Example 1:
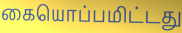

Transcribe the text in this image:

கையொப்பமிட்டது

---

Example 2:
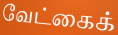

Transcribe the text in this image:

வேட்கைக்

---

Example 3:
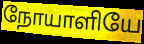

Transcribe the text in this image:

நோயாளியே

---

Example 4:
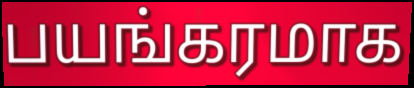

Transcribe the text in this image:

பயங்கரமாக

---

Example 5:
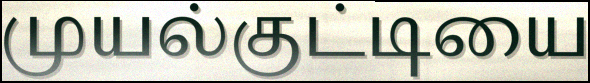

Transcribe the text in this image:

முயல்குட்டியை